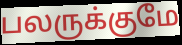
பலருக்குமே